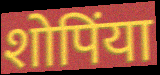
शोपिंया